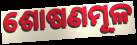
ଶୋଷଣମୂଳ